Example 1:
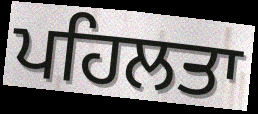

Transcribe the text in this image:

ਪਹਿਲਤਾ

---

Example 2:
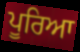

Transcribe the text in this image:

ਪੂਰਿਆ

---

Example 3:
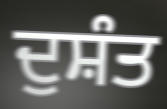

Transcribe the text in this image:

ਦੁਸ਼ੰਤ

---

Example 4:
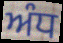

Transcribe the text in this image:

ਅੰਧ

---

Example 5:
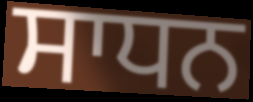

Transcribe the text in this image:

ਸਾਧਨ